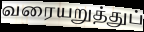
வரையறுத்துப்